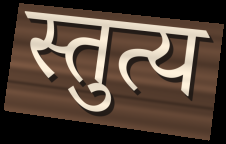
स्तुत्य